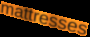
mattresses